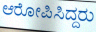
ಆರೋಪಿಸಿದ್ದರು